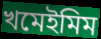
খমেইমিম